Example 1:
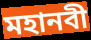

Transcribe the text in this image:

মহানবী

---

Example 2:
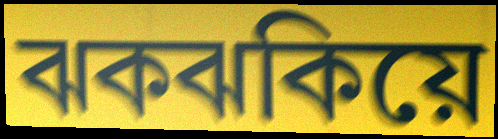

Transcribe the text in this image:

ঝকঝকিয়ে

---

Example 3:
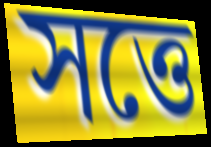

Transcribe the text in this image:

সত্তে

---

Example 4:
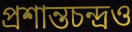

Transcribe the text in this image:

প্রশান্তচন্দ্রও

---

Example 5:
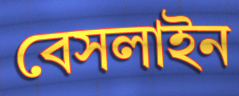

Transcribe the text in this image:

বেসলাইন